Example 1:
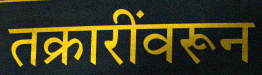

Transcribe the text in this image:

तक्रारींवरून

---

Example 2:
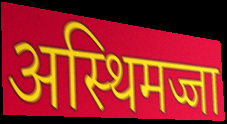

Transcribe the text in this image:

अस्थिमज्जा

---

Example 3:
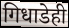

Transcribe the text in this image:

गिधाडेही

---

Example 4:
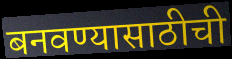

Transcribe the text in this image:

बनवण्यासाठीची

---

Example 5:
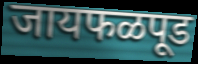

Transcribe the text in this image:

जायफळपूड